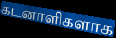
கடனாளிகளாக